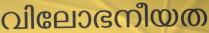
വിലോഭനീയത